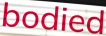
bodied